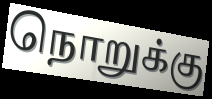
நொறுக்கு